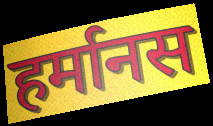
हर्मानस